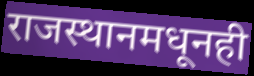
राजस्थानमधूनही